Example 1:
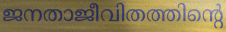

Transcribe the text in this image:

ജനതാജീവിതത്തിന്റെ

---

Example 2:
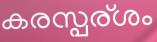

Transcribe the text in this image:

കരസ്പര്ശം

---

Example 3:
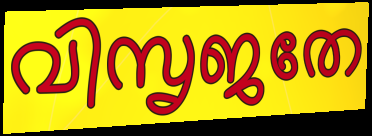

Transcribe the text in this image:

വിസൃജതേ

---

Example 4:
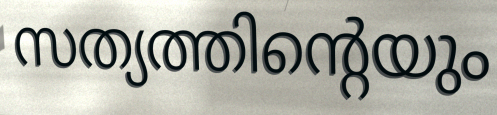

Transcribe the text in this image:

സത്യത്തിന്റെയും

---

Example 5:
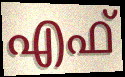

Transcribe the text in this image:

എഫ്